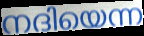
നദിയെന്ന